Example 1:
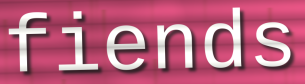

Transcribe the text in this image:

fiends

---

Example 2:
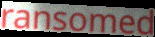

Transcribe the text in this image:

ransomed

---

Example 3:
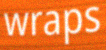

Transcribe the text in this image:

wraps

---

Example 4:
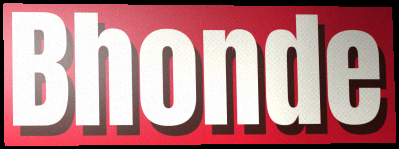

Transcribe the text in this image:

Bhonde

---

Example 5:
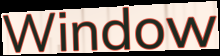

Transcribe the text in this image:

Window